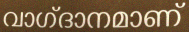
വാഗ്‌ദാനമാണ്